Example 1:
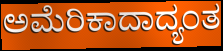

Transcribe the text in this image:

ಅಮೆರಿಕಾದಾದ್ಯಂತ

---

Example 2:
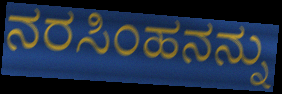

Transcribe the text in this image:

ನರಸಿಂಹನನ್ನು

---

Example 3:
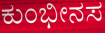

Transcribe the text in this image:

ಕುಂಭೀನಸ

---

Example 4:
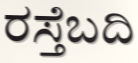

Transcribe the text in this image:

ರಸ್ತೆಬದಿ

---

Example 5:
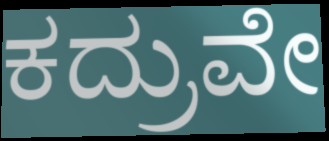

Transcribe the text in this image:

ಕದ್ರುವೇ